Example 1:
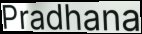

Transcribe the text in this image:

Pradhana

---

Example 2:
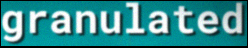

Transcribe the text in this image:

granulated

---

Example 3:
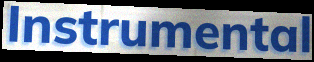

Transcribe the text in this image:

Instrumental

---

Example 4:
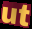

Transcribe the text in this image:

ut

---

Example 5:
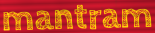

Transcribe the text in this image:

mantram